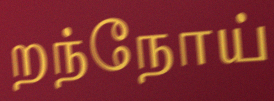
றந்நோய்